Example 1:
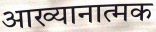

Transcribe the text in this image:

आख्यानात्मक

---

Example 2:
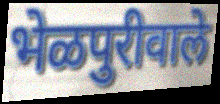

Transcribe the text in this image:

भेळपुरीवाले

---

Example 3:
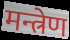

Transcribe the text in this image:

मन्त्रेण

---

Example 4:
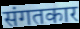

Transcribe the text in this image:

संगतकार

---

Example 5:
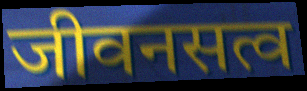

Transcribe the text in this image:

जीवनसत्व